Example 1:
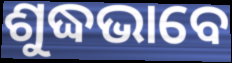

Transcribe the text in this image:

ଶୁଦ୍ଧଭାବେ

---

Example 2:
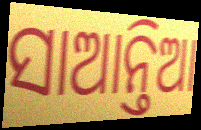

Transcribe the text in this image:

ସାଆନ୍ତିଆ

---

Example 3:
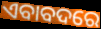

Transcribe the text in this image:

ଏବାବଦରେ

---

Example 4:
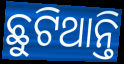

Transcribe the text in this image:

ଛୁଟିଥାନ୍ତି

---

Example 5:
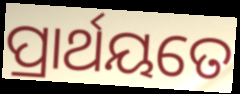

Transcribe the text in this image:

ପ୍ରାର୍ଥୟତେ